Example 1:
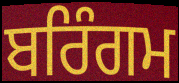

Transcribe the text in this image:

ਬਰਿੰਗਮ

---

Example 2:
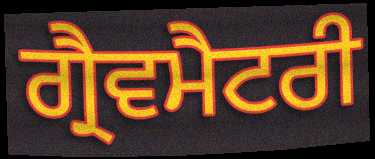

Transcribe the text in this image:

ਗ੍ਰੈਵਮੈਟਰੀ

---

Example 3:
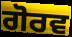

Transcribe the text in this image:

ਗੋਰਵ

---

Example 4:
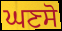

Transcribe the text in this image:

ਘਣਸੋ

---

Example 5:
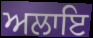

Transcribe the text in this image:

ਅਲਾਇ